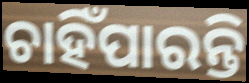
ଚାହିଁପାରନ୍ତି